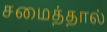
சமைத்தால்